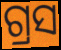
ଗ୍ରସ